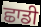
ਛਾਡੀ